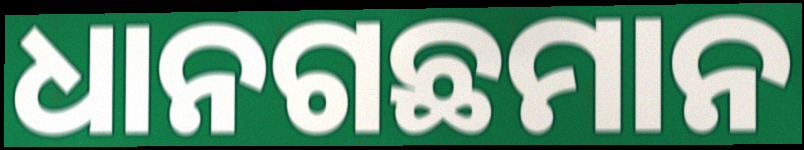
ଧାନଗଛମାନ